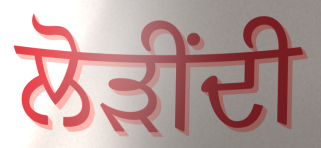
ਲੋੜੀਂਦੀ